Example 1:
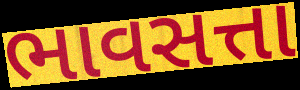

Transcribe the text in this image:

ભાવસત્તા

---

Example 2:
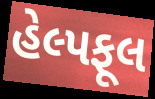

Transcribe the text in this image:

હેલ્પફૂલ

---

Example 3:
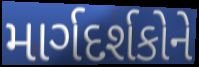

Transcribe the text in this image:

માર્ગદર્શકોને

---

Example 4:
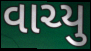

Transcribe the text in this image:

વાચ્યુ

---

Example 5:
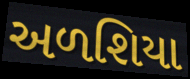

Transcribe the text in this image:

અળશિયા